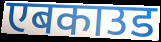
एबकाउड